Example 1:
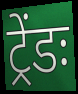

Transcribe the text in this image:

ट्रेंडः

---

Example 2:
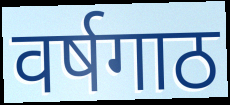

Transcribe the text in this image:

वर्षगाठ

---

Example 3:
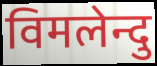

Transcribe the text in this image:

विमलेन्दु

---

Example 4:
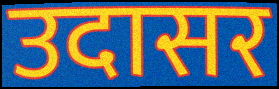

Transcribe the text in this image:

उदासर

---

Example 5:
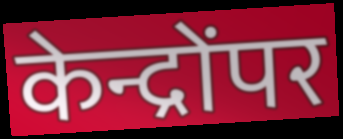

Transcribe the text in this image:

केन्द्रोंपर